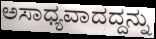
ಅಸಾಧ್ಯವಾದದ್ದನ್ನು